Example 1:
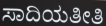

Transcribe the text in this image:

ಸಾದಿಯತೀತಿ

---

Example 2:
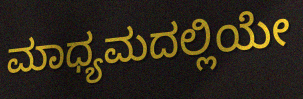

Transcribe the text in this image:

ಮಾಧ್ಯಮದಲ್ಲಿಯೇ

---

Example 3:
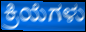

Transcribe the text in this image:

ಕ್ರಿಯೆಗಳು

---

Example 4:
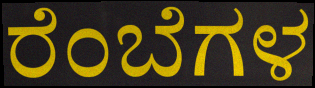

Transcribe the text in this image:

ರೆಂಬೆಗಳ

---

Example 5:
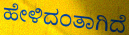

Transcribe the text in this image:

ಹೇಳಿದಂತಾಗಿದೆ